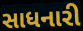
સાધનારી